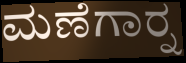
ಮಣೆಗಾರ್‍ನ